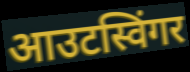
आउटस्विंगर